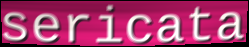
sericata